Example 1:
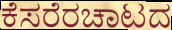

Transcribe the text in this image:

ಕೆಸರೆರಚಾಟದ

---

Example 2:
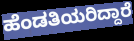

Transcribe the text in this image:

ಹೆಂಡತಿಯರಿದ್ದಾರೆ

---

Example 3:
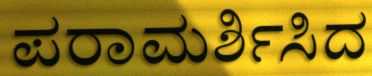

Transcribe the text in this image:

ಪರಾಮರ್ಶಿಸಿದ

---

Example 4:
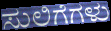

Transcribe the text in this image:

ಸುಲಿಗೆಗಳು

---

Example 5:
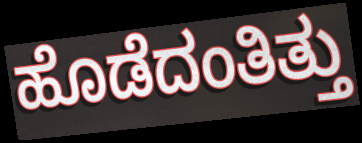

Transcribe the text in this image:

ಹೊಡೆದಂತಿತ್ತು